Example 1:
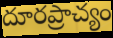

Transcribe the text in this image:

దూరప్రాచ్యం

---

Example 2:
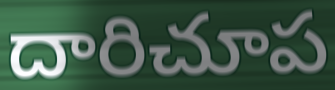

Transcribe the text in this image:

దారిచూప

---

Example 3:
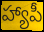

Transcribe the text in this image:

హ్యాపీ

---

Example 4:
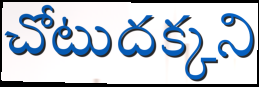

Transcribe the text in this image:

చోటుదక్కని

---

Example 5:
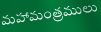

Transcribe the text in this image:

మహామంత్రములు